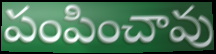
పంపించావు